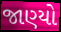
જાણ્યો